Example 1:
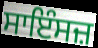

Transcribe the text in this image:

ਸਾਇੰਸਜ਼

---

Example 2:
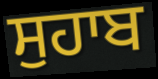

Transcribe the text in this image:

ਸੁਹਾਬ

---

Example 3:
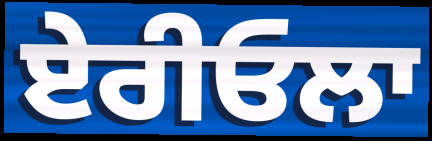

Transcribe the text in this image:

ਏਰੀਓਲਾ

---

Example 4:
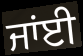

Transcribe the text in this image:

ਜਾਂਈ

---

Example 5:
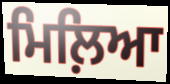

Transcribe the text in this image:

ਮਿਲ਼ਿਆ